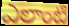
ఎలాంటి